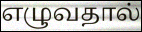
எழுவதால்